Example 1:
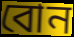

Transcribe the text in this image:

বোন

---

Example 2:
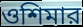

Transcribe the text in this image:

ওশিমার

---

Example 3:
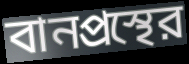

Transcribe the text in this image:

বানপ্রস্থের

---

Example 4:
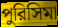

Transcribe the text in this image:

পুরিসিমা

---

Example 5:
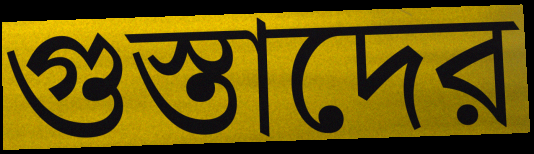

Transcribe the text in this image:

গুস্তাদের